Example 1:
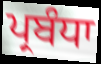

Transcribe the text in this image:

ਪ੍ਰਬੰਧਾ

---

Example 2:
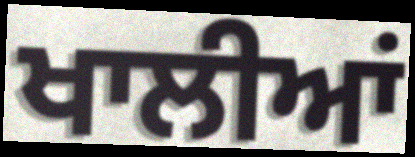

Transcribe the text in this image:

ਖਾਲੀਆਂ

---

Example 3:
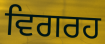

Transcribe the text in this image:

ਵਿਗਰਹ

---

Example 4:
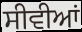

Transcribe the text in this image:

ਸੀਵੀਆਂ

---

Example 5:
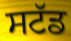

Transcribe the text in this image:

ਸਟੱਡ